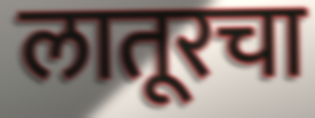
लातूरचा